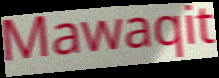
Mawaqit